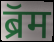
ब्रॅम